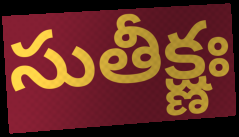
సుతీక్ష్ణః